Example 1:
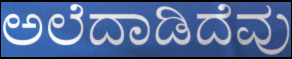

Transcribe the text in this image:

ಅಲೆದಾಡಿದೆವು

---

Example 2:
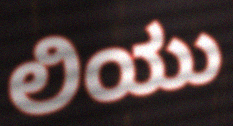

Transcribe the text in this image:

ಲಿಯು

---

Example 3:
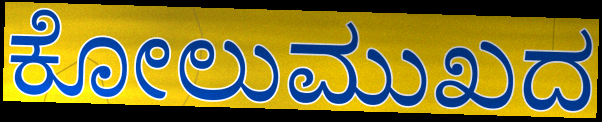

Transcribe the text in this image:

ಕೋಲುಮುಖದ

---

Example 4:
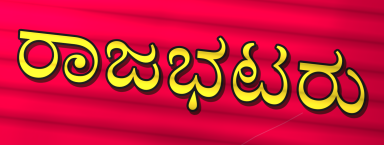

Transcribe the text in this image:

ರಾಜಭಟರು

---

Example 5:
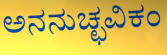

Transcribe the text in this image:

ಅನನುಚ್ಛವಿಕಂ